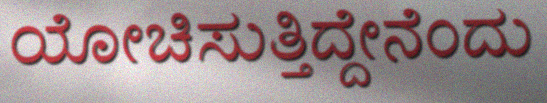
ಯೋಚಿಸುತ್ತಿದ್ದೇನೆಂದು